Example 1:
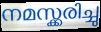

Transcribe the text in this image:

നമസ്ക്കരിച്ചു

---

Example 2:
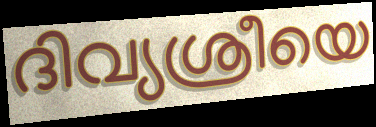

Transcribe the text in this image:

ദിവ്യശ്രീയെ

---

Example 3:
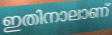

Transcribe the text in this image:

ഇതിനാലാണ്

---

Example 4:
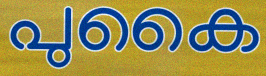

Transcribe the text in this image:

പുകൈ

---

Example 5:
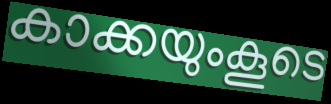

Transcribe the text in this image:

കാക്കയുംകൂടെ